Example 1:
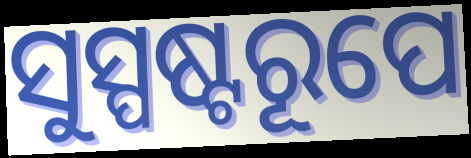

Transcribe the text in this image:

ସୁସ୍ପଷ୍ଟରୂପେ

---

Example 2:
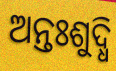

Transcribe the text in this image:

ଅନ୍ତଃଶୁଦ୍ଧି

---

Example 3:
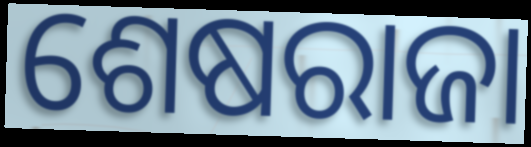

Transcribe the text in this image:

ଶେଷରାଜା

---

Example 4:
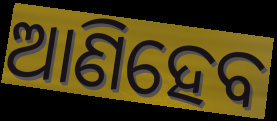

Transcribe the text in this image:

ଆଣିହେବ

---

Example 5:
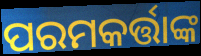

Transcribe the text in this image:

ପରମକର୍ତ୍ତାଙ୍କ